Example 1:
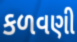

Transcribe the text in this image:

કળવણી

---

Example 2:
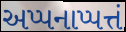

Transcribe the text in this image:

અપ્પનાપ્પત્તં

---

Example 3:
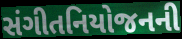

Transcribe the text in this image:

સંગીતનિયોજનની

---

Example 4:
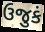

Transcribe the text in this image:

ઉજુકં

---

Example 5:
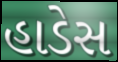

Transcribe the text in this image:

હાડેસ